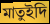
মাতুইদি